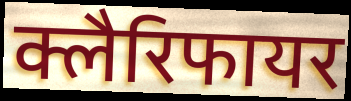
क्लैरिफायर